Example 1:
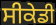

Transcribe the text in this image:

ਸੀਕੇਡੀ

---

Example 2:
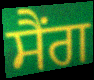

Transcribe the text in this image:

ਸੈਂਗ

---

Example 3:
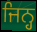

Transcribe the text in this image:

ਜਿਨ੍ਹ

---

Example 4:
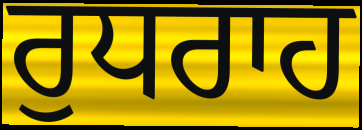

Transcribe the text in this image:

ਰੁਧਰਾਹ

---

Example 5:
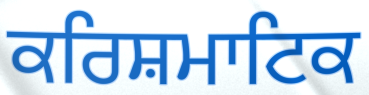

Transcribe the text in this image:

ਕਰਿਸ਼ਮਾਟਿਕ